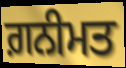
ਗ਼ਨੀਮਤ